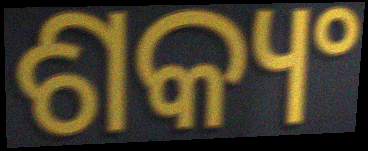
ଶକ୍ୟଂ